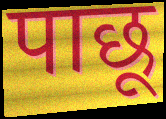
पाछू